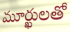
మూర్ఖులతో